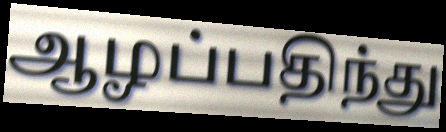
ஆழப்பதிந்து